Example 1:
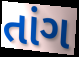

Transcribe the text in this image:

તાંગ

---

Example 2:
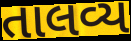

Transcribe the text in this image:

તાલવ્ય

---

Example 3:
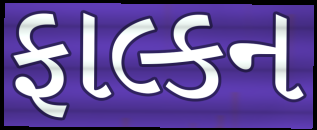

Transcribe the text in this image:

ફાલ્કન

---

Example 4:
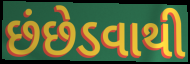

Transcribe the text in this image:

છંછેડવાથી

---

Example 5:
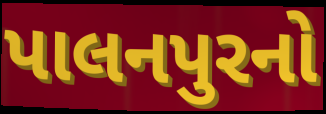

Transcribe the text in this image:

પાલનપુરનો